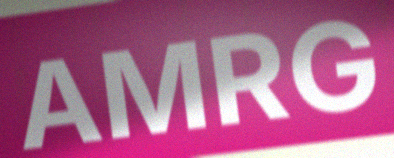
AMRG